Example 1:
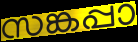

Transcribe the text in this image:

സങ്കപ്പാ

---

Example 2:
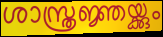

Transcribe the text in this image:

ശാസ്ത്രജ്ഞയ്ക്കും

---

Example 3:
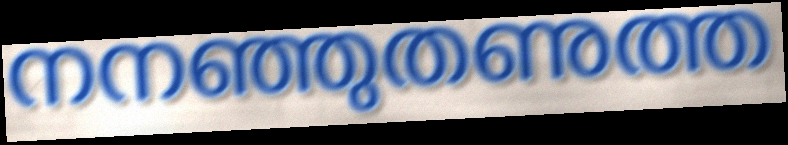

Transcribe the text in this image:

നനഞ്ഞുതണുത്ത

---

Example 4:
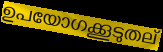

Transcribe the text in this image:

ഉപയോഗക്കൂടുതല്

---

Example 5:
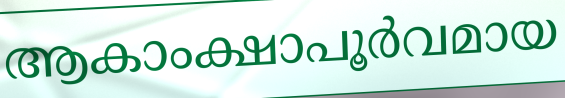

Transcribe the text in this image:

ആകാംക്ഷാപൂർവമായ